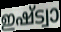
ഇഷ്ട്വാ